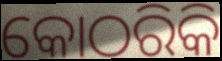
କୋଠରିକି